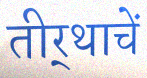
तीर्थाचें